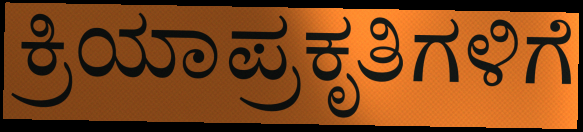
ಕ್ರಿಯಾಪ್ರಕೃತಿಗಳಿಗೆ